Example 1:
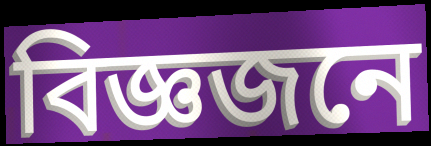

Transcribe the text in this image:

বিজ্ঞজনে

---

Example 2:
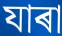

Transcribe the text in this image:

যাৰা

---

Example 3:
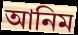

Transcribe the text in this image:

আনিম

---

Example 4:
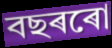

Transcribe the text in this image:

বছৰৰো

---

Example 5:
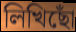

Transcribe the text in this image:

লিখিছোঁ